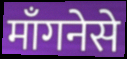
माँगनेसे